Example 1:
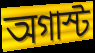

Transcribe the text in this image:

অগাস্ট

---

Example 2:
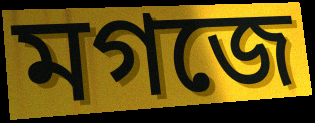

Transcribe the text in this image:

মগজে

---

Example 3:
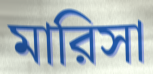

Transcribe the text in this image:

মারিসা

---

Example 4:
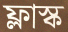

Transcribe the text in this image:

ফ্লাস্ক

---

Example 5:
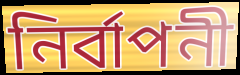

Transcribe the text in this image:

নির্বাপনী